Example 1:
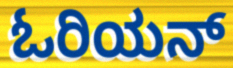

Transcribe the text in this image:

ಓರಿಯನ್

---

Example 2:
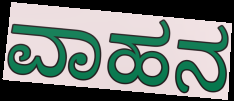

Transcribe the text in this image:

ವಾಹನ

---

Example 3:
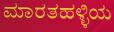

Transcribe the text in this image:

ಮಾರತಹಳ್ಳಿಯ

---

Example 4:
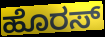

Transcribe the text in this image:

ಹೊರಸ್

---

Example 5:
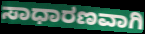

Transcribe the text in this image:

ಸಾಧಾರಣವಾಗಿ